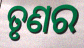
ତୃଣର